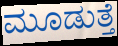
ಮೂಡುತ್ತೆ